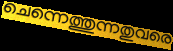
ചെന്നെത്തുന്നതുവരെ